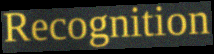
Recognition